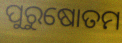
ପୁରୁଷୋତମ